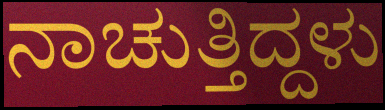
ನಾಚುತ್ತಿದ್ದಳು